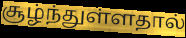
சூழ்ந்துள்ளதால்